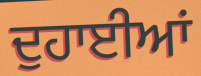
ਦੁਹਾਈਆਂ